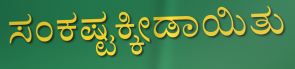
ಸಂಕಷ್ಟಕ್ಕೀಡಾಯಿತು